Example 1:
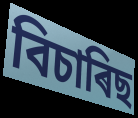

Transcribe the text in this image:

বিচাৰিছ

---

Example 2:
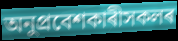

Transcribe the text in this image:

অনুপ্ৰবেশকাৰীসকলৰ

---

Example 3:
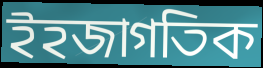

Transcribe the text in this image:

ইহজাগতিক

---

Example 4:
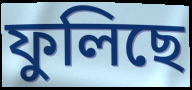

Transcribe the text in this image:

ফুলিছে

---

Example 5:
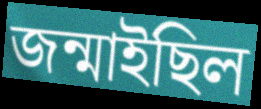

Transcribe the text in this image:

জন্মাইছিল